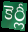
కెర్లీ